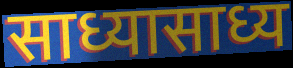
साध्यासाध्य